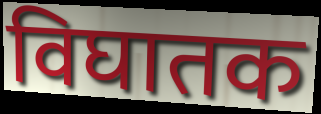
विघातक